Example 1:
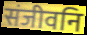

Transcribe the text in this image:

संजीवनि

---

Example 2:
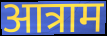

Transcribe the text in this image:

आत्राम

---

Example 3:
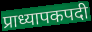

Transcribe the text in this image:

प्राध्यापकपदी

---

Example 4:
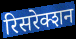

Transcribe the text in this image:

रिसरेक्शन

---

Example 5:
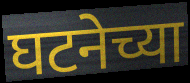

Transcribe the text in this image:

घटनेच्या